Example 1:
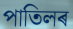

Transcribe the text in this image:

পাতিলৰ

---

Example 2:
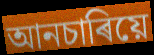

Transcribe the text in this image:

আনচাৰিয়ে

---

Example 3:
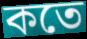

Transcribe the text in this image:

কতে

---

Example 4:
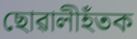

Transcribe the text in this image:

ছোৱালীহঁতক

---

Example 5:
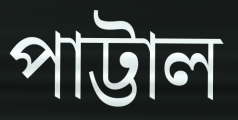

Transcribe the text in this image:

পাট্টাল